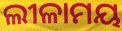
ଲୀଳାମୟ